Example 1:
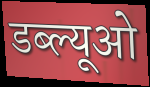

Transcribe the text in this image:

डब्ल्यूओ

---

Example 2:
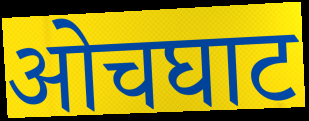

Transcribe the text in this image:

ओचघाट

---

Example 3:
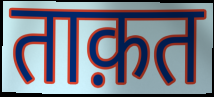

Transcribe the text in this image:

ताक़त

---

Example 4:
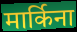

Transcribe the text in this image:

मार्किना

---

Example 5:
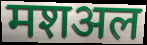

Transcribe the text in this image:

मशअल